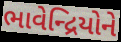
ભાવેન્દ્રિયોને